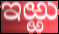
ఇఱ్ఱు